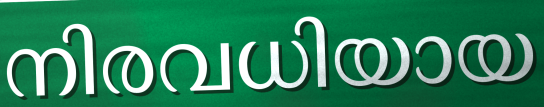
നിരവധിയായ